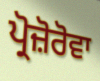
ਪ੍ਰੋਜ਼ੋਰੋਵਾ